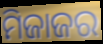
ମିଜାଜର